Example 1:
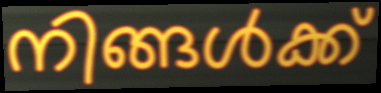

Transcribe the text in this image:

നിങ്ങൾക്ക്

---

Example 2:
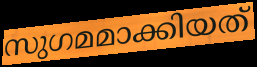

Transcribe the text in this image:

സുഗമമാക്കിയത്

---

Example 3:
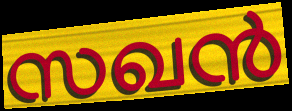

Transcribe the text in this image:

സഖൻ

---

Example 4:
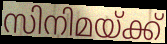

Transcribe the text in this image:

സിനിമയ്ക്ക്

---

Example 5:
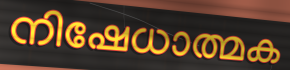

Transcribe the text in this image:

നിഷേധാത്മക